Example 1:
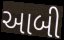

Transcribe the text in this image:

આબી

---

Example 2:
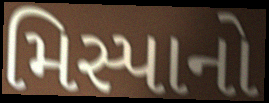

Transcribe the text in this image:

મિસ્પાનો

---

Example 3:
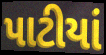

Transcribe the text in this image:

પાટીયાં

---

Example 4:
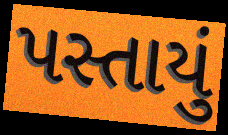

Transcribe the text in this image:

પસ્તાયું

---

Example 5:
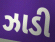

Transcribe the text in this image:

ઝાડી